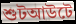
শুটআউটে